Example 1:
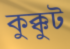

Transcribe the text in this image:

কুক্কুট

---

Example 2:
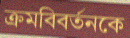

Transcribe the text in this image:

ক্রমবিবর্তনকে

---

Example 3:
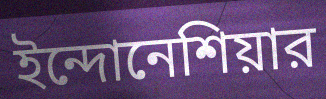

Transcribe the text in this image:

ইন্দোনেশিয়ার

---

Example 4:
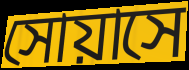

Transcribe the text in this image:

সোয়াসে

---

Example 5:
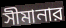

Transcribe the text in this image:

সীমানার